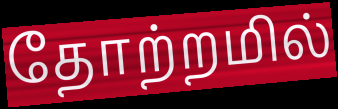
தோற்றமில்